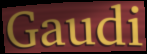
Gaudi